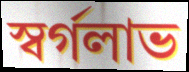
স্বর্গলাভ